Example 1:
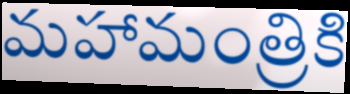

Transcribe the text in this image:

మహామంత్రికి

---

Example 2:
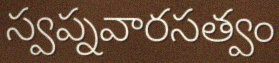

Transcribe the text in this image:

స్వప్నవారసత్వం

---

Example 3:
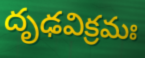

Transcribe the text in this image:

దృఢవిక్రమః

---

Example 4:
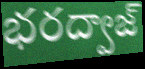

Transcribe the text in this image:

భరద్వాజ్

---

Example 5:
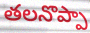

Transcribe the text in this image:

తలనొప్పా